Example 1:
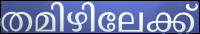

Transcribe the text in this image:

തമിഴിലേക്ക്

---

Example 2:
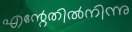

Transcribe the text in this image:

എന്റേതിൽനിന്നു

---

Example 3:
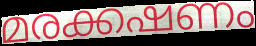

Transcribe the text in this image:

മരക്കഷണം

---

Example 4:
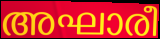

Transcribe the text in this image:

അഘാരീ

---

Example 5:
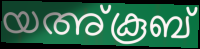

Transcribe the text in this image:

യഅ്കൂബ്